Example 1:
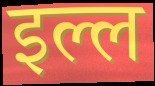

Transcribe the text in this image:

इल्ल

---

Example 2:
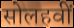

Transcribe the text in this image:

सोलहवीं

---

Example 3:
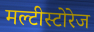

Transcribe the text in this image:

मल्टीस्टोरेज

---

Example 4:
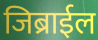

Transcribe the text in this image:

जिब्राईल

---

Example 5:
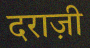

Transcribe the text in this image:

दराज़ी